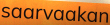
saarvaakan